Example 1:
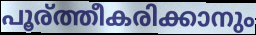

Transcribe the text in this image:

പൂര്ത്തീകരിക്കാനും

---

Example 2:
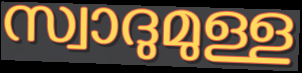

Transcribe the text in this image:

സ്വാദുമുള്ള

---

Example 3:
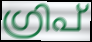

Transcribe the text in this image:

ഗ്രിപ്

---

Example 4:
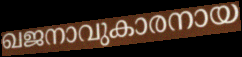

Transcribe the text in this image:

ഖജനാവുകാരനായ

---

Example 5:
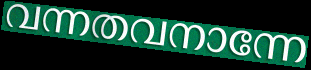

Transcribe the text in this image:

വന്നതവനാന്നേ